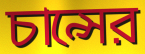
চান্সের